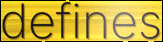
defines